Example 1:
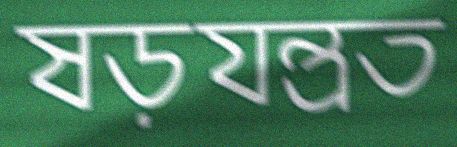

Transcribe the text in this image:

ষড়যন্ত্ৰত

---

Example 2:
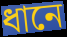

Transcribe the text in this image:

ধানে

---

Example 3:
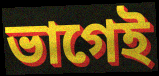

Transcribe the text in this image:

ভাগেই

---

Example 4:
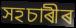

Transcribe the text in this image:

সহচাৰীৰ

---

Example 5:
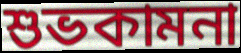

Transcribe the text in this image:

শুভকামনা